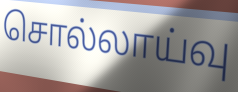
சொல்லாய்வு